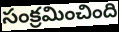
సంక్రమించింది